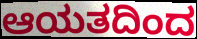
ಆಯತದಿಂದ